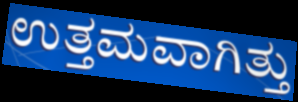
ಉತ್ತಮವಾಗಿತ್ತು